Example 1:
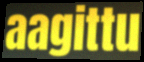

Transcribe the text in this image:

aagittu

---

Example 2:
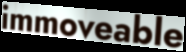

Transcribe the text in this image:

immoveable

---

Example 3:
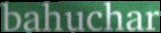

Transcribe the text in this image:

bahuchar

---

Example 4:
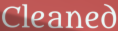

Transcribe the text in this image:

Cleaned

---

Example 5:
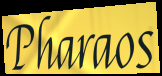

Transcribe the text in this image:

Pharaos